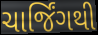
ચાર્જિંગથી